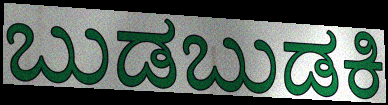
ಬುಡಬುಡಕಿ